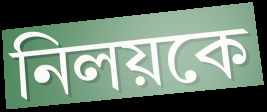
নিলয়কে